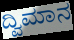
ದ್ವಿಮಾನ